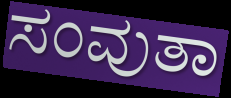
ಸಂವುತಾ